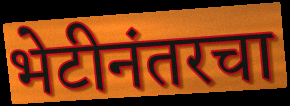
भेटीनंतरचा